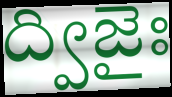
ద్విజైః